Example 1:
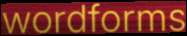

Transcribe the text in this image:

wordforms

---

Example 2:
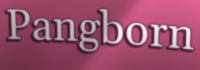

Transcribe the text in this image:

Pangborn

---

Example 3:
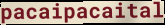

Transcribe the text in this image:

pacaipacaital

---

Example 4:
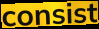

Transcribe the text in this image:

consist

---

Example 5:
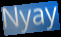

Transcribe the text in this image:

Nyay